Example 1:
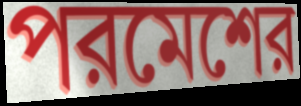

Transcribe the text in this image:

পরমেশের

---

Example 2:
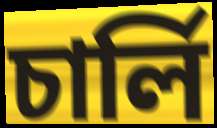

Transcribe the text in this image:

চার্লি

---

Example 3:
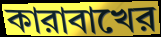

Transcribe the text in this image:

কারাবাখের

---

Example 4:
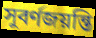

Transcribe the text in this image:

সুবর্ণজয়ন্তি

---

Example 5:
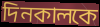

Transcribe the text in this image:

দিনকালকে